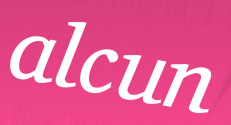
alcun